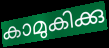
കാമുകിക്കു